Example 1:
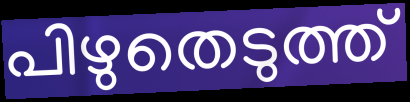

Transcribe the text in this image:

പിഴുതെടുത്ത്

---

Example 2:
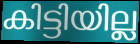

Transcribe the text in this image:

കിട്ടിയില്ല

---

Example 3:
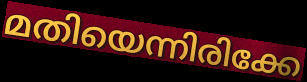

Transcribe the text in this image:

മതിയെന്നിരിക്കേ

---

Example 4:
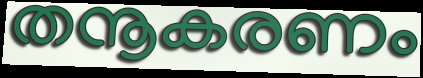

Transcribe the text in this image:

തനൂകരണം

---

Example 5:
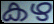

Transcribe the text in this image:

കഴ